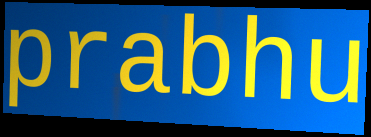
prabhu